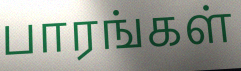
பாரங்கள்